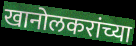
खानोलकरांच्या